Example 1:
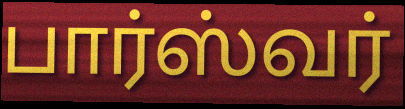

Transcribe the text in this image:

பார்ஸ்வர்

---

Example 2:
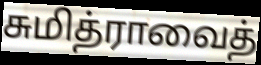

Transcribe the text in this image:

சுமித்ராவைத்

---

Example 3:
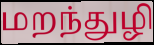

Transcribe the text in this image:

மறந்துழி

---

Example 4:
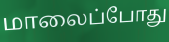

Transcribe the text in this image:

மாலைப்போது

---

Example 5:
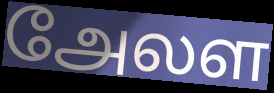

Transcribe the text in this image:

அேலள